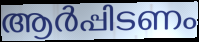
ആർപ്പിടണം